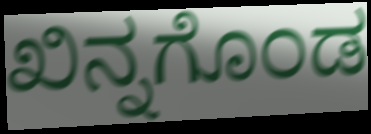
ಖಿನ್ನಗೊಂಡ